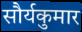
सौर्यकुमार